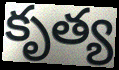
కృత్య